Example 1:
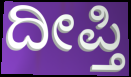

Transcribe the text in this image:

ದೀಪ್ತಿ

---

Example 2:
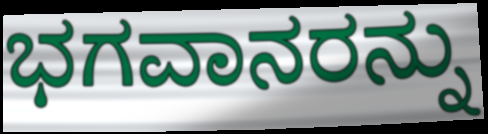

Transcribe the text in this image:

ಭಗವಾನರನ್ನು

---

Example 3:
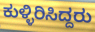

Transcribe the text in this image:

ಕುಳ್ಳಿರಿಸಿದ್ದರು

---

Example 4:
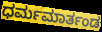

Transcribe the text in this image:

ಧರ್ಮಮಾರ್ತಂಡ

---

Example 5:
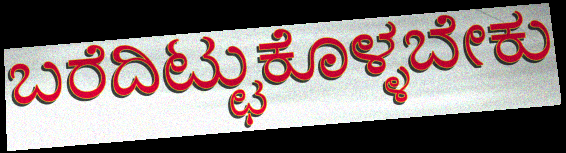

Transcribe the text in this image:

ಬರೆದಿಟ್ಟುಕೊಳ್ಳಬೇಕು